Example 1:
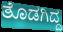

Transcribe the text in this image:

ತೊಡಗಿದ್ದ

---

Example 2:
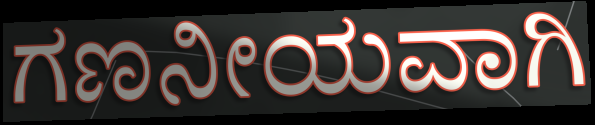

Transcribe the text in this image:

ಗಣನೀಯವಾಗಿ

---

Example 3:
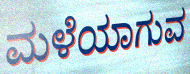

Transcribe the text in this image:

ಮಳೆಯಾಗುವ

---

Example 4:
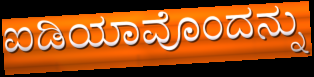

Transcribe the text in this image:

ಐಡಿಯಾವೊಂದನ್ನು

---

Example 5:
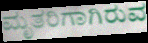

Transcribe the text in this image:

ಮೃತರಿಗಾಗಿರುವ